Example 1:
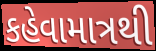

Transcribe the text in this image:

કહેવામાત્રથી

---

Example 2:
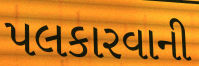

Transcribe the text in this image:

પલકારવાની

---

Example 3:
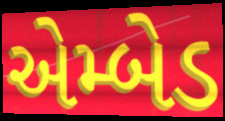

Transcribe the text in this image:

એમ્બેડ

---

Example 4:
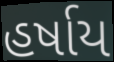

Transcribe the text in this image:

હર્ષાય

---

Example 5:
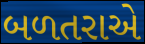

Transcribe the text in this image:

બળતરાએ